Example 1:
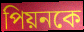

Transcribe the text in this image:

পিয়নকে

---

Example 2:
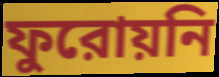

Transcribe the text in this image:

ফুরোয়নি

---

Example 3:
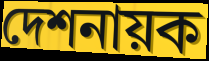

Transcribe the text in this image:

দেশনায়ক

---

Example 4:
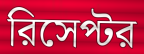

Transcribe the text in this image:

রিসেপ্টর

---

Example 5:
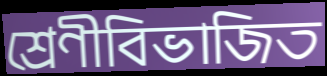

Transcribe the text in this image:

শ্রেণীবিভাজিত